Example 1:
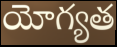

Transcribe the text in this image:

యోగ్యత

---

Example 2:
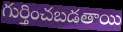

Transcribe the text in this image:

గుర్తించబడతాయి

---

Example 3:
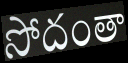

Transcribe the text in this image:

సోదంతా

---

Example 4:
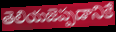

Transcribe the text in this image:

తెలియజెప్పడానికే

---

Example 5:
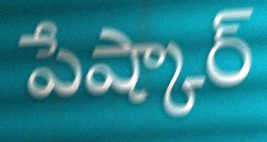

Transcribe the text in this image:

పేష్కార్